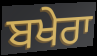
ਬਖੇਰਾ